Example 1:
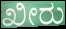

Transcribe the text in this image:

ಖೀರು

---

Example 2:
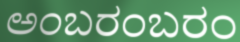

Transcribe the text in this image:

ಅಂಬರಂಬರಂ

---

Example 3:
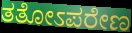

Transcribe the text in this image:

ತತೋಽಪರೇಣ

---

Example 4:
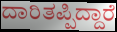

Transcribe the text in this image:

ದಾರಿತಪ್ಪಿದ್ದಾರೆ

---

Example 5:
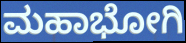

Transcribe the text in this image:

ಮಹಾಭೋಗಿ